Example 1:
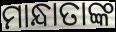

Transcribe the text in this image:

ମାନ୍ଧାତାଙ୍କ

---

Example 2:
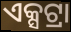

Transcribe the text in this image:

ଏକ୍ସଟ୍ରା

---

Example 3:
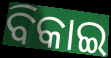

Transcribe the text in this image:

ବିକାଇ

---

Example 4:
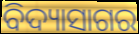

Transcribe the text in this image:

ବିଦ୍ୟାସାଗର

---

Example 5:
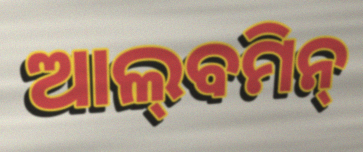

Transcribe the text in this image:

ଆଲ୍‌ବମିନ୍